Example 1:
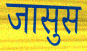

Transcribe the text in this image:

जासुस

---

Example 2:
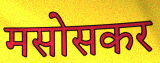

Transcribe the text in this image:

मसोसकर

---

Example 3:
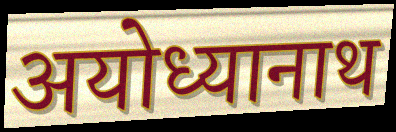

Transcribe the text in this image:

अयोध्यानाथ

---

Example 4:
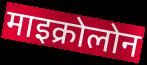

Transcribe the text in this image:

माइक्रोलोन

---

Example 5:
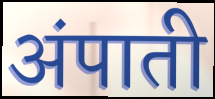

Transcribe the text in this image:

अंपाती